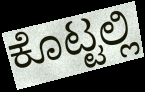
ಕೊಟ್ಟಲ್ಲಿ